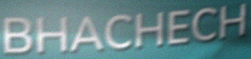
BHACHECH